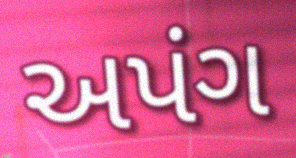
અપંગ